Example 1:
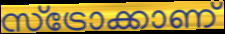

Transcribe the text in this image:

സ്ട്രോക്കാണ്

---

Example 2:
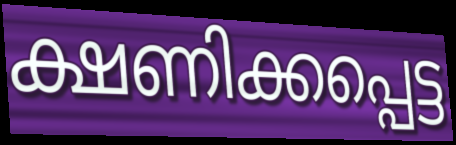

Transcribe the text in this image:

ക്ഷണിക്കപ്പെട്ട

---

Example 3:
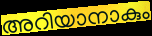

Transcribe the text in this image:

അറിയാനാകും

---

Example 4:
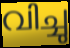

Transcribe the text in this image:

വിച്ചു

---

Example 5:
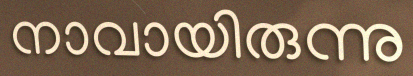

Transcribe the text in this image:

നാവായിരുന്നു